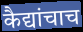
कैद्यांचाच